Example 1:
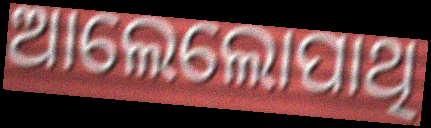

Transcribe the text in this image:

ଆଲେଲୋପାଥି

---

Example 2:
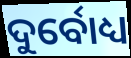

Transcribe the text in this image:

ଦୁର୍ବୋଧ୍ୟ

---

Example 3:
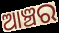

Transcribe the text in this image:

ଆଞ୍ଚର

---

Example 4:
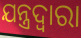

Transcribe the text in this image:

ଯନ୍ତ୍ରଦ୍ବାରା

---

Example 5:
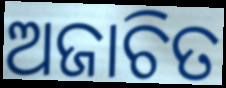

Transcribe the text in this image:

ଅଜାଚିତ